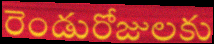
రెండురోజులకు